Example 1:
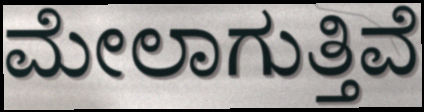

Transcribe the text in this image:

ಮೇಲಾಗುತ್ತಿವೆ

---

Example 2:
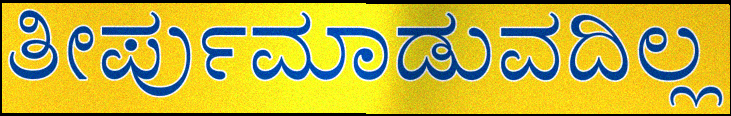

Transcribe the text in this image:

ತೀರ್ಪುಮಾಡುವದಿಲ್ಲ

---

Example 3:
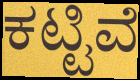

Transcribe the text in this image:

ಕಟ್ಟಿವೆ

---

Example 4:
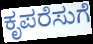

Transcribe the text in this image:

ಕೃಪರೆಸುಗೆ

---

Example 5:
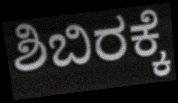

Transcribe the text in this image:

ಶಿಬಿರಕ್ಕೆ